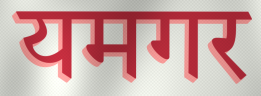
यमगर